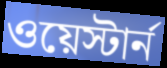
ওয়েস্টার্ন